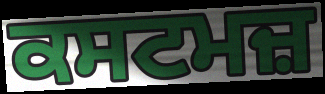
ਕਸਟਮਜ਼